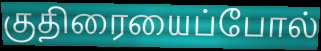
குதிரையைப்போல்